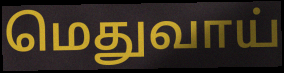
மெதுவாய்